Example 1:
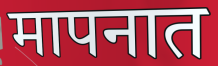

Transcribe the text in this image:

मापनात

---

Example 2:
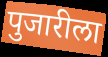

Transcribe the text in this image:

पुजारीला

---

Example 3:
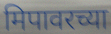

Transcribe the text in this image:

मिपावरच्या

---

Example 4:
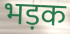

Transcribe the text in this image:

भड़क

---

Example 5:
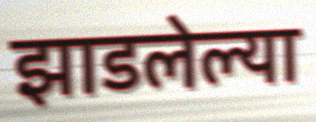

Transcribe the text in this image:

झाडलेल्या